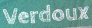
Verdoux